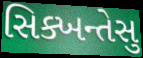
સિક્ખન્તેસુ